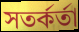
সতর্কর্তা